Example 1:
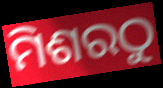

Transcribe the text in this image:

ମିଶରଠୁ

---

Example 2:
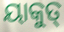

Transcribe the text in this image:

ୟାକୁତ୍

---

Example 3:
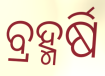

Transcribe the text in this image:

ବ୍ରହ୍ମର୍ଷି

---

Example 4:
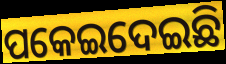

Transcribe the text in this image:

ପକେଇଦେଇଛି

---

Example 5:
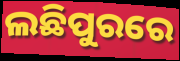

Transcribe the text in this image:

ଲଛିପୁରରେ